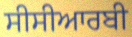
ਸੀਸੀਆਰਬੀ